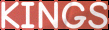
KINGS